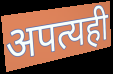
अपत्यही